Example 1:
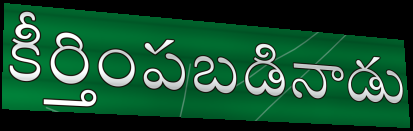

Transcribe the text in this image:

కీర్తింపబడినాడు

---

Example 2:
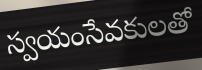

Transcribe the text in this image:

స్వయంసేవకులతో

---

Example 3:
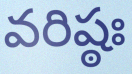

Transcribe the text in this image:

వరిష్ఠః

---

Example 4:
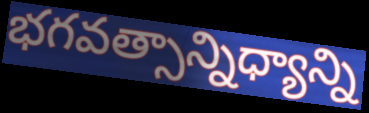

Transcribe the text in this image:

భగవత్సాన్నిధ్యాన్ని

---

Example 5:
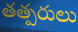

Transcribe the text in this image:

తత్పరులు